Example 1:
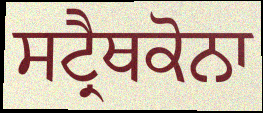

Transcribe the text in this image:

ਸਟ੍ਰੈਥਕੋਨਾ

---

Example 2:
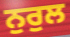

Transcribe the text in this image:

ਨੁਰੁਲ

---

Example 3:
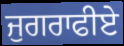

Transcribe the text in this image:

ਜੁਗਰਾਫੀਏ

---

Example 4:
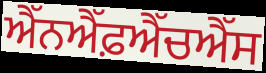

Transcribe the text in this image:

ਐੱਨਐੱਫ਼ਐੱਚਐੱਸ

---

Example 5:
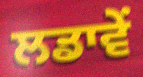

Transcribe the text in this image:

ਲਡਾਵੇਂ